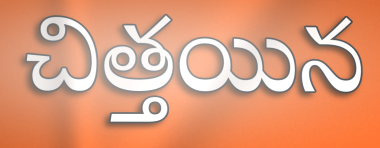
చిత్తయిన